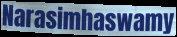
Narasimhaswamy